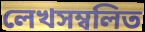
লেখসম্বলিত